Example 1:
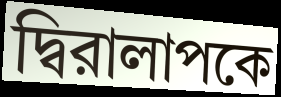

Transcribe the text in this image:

দ্বিরালাপকে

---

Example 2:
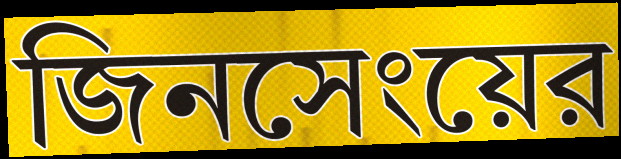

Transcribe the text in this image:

জিনসেংয়ের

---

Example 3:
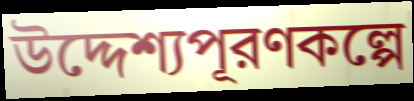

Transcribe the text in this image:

উদ্দেশ্যপূরণকল্পে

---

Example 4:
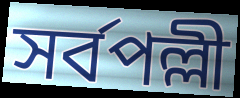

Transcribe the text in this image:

সর্বপল্লী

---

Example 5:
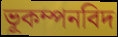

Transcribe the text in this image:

ভূকম্পনবিদ